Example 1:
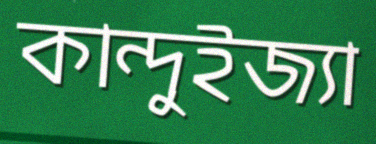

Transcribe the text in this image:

কান্দুইজ্যা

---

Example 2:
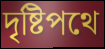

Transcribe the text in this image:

দৃষ্টিপথে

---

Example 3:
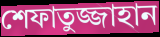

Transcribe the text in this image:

শেফাতুজ্জাহান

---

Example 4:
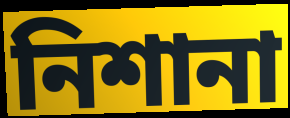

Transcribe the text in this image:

নিশানা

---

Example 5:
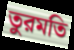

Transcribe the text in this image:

তুরমতি